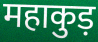
महाकुड़